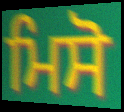
ਮਿਸੋ